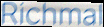
Richmal